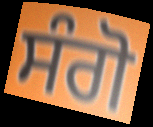
ਸੰਗੋ